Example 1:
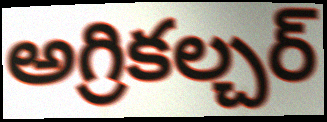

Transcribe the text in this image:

అగ్రికల్చర్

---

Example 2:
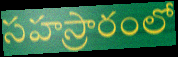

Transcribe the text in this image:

సహస్రారంలో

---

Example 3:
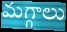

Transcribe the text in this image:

మగ్గాలు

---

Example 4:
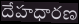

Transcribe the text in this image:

దేహధారణ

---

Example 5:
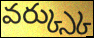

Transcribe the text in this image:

వర్క్స్కు